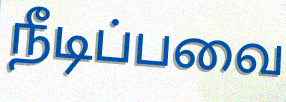
நீடிப்பவை